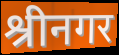
श्रीनगर